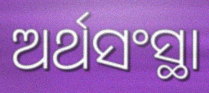
ଅର୍ଥସଂସ୍ଥା